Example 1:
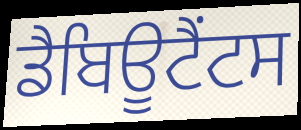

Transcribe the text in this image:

ਡੈਬਿਊਟੈਂਟਸ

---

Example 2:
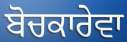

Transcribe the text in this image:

ਬੋਚਕਾਰੇਵਾ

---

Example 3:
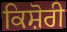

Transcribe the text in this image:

ਕਿਸ਼ੋਰੀ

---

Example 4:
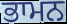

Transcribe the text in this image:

ਭਾਮਨ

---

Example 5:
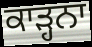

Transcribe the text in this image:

ਕਾੜ੍ਹਨਾ